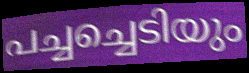
പച്ചച്ചെടിയും